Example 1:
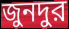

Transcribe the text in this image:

জুনদুর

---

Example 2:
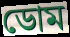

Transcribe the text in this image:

ডোম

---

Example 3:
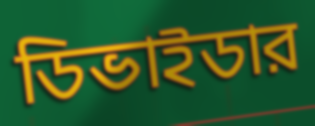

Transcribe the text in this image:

ডিভাইডার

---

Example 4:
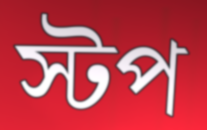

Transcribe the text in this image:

স্টপ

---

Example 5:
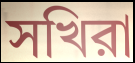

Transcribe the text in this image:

সখিরা